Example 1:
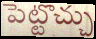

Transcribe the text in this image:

పెట్టొచ్చు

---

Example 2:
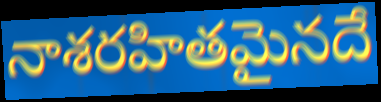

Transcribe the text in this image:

నాశరహితమైనదే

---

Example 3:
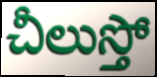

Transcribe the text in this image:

చీలుస్తో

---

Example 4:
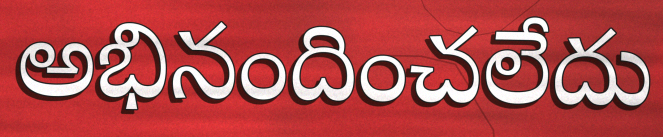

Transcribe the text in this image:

అభినందించలేదు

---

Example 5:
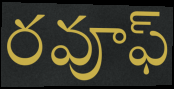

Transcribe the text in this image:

రవూఫ్